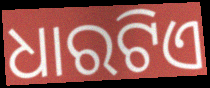
ଧାରଟିଏ